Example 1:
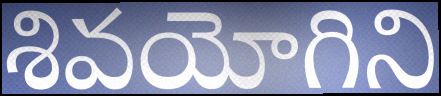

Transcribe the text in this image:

శివయోగిని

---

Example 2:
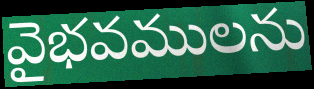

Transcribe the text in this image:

వైభవములను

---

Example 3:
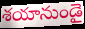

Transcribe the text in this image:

శయానుండై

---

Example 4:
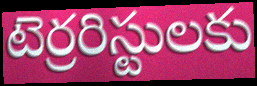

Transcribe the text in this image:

టెర్రరిస్టులకు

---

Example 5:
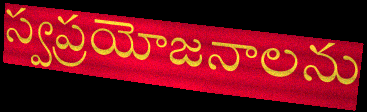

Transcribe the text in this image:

స్వప్రయోజనాలను